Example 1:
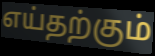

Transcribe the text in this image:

எய்தற்கும்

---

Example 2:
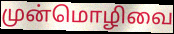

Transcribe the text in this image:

முன்மொழிவை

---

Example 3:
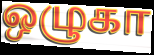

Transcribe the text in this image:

ஒழுகா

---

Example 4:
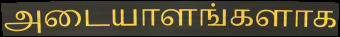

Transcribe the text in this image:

அடையாளங்களாக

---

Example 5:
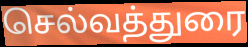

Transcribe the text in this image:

செல்வத்துரை